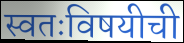
स्वतःविषयीची